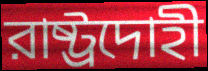
রাষ্ট্রদোহী